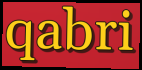
qabri